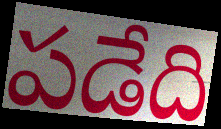
పడేది